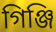
গিঞ্জি